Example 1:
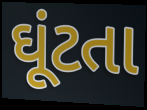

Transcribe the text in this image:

ઘૂંટતા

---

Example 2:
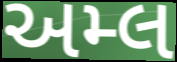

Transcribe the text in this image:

અમ્લ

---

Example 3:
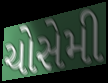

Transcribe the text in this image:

ચોસેમી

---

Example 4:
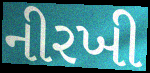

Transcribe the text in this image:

નીરખી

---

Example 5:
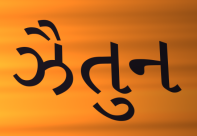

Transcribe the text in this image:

ઝૈતુન